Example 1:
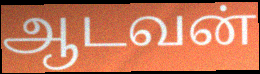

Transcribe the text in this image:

ஆடவன்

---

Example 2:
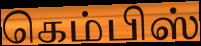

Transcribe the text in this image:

கெம்பிஸ்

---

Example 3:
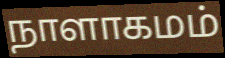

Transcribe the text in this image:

நாளாகமம்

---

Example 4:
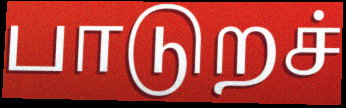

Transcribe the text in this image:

பாடுறச்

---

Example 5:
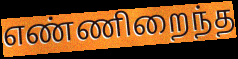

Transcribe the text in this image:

எண்ணிறைந்த